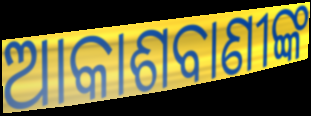
ଆକାଶବାଣୀଙ୍କ